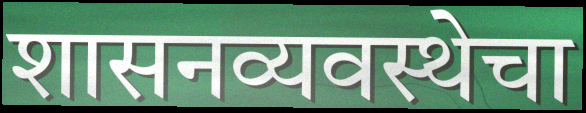
शासनव्यवस्थेचा